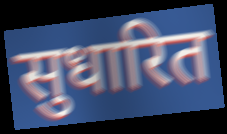
सुधारित